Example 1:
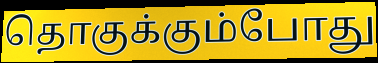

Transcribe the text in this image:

தொகுக்கும்போது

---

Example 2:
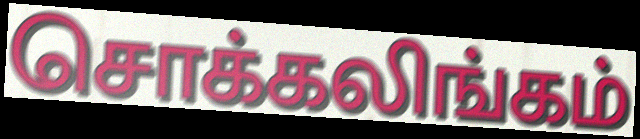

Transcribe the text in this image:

சொக்கலிங்கம்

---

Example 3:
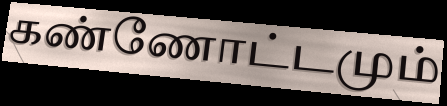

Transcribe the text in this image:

கண்ணோட்டமும்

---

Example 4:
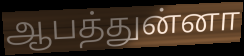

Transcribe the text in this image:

ஆபத்துன்னா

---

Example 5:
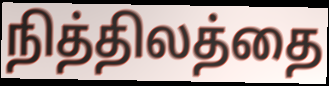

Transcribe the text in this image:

நித்திலத்தை